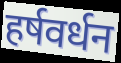
हर्षवर्धन